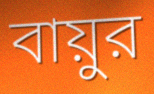
বায়ুর